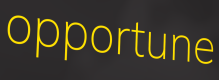
opportune